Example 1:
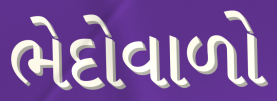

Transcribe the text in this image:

ભેદોવાળો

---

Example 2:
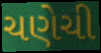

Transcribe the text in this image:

ચણેચી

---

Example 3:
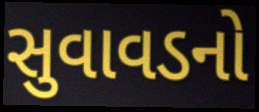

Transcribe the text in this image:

સુવાવડનો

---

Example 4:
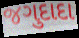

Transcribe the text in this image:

જગુદાદા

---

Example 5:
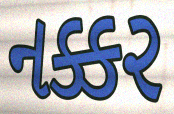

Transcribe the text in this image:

નક્કર